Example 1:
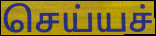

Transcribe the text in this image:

செய்யச்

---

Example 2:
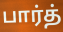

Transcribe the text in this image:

பார்த்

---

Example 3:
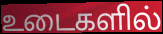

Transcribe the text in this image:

உடைகளில்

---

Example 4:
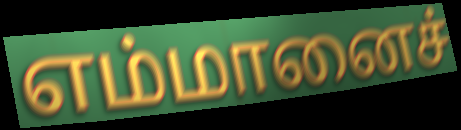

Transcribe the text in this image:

எம்மானைச்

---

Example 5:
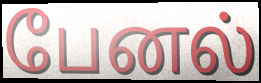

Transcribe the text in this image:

பேனல்